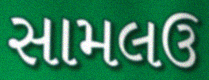
સામલઉ